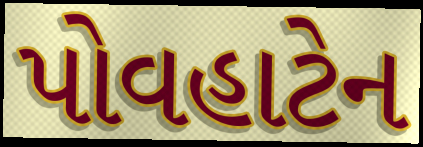
પોવહાટેન